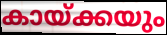
കായ്ക്കയും